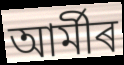
আৰ্মীৰ